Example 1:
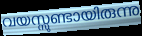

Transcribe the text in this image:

വയസ്സുണ്ടായിരുന്നു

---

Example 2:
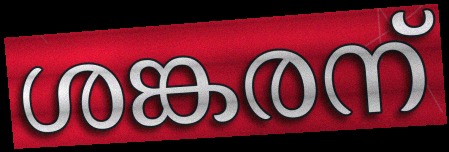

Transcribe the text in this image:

ശങ്കരന്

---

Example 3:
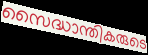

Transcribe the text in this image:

സൈദ്ധാന്തികരുടെ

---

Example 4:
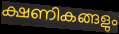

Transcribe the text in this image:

ക്ഷണികങ്ങളും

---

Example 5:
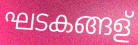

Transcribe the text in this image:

ഘടകങ്ങള്